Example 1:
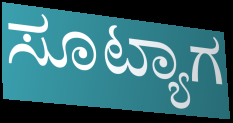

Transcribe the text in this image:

ಸೂಟ್ಯಾಗ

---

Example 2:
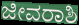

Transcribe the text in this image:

ಜೀವರಾಶಿ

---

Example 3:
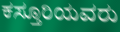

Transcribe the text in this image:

ಕಸ್ತೂರಿಯವರು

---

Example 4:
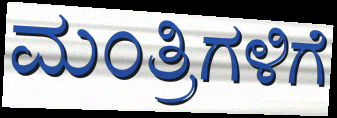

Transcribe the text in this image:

ಮಂತ್ರಿಗಳಿಗೆ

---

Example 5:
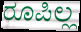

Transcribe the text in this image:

ರೂಪಿಲ್ಲ